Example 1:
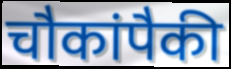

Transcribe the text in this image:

चौकांपैकी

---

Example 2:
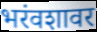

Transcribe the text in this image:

भरंवशावर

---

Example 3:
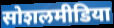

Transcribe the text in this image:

सोशलमीडिया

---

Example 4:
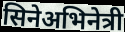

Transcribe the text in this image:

सिनेअभिनेत्री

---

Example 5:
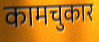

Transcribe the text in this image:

कामचुकार